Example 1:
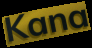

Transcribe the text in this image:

Kana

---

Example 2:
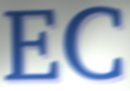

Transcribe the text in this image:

EC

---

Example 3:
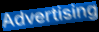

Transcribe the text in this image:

Advertising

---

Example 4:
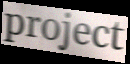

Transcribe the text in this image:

project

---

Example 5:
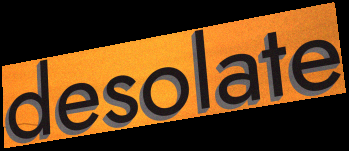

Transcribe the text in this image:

desolate